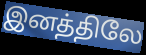
இனத்திலே